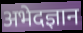
अभेदज्ञान